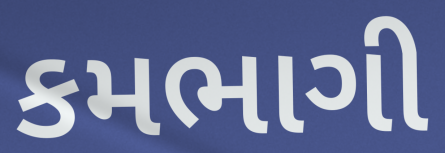
કમભાગી